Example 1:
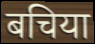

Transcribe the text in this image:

बचिया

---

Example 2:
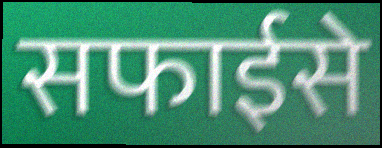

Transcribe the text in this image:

सफाईसे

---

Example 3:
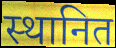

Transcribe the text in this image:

स्थानित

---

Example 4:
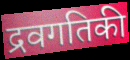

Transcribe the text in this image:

द्रवगतिकी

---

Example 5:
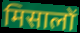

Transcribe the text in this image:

मिसालों